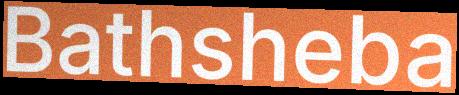
Bathsheba